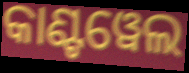
କାଣ୍ଟୱେଲ